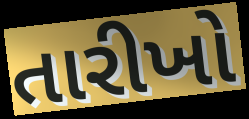
તારીખો